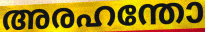
അരഹന്തോ